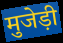
मुजेड़ी